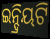
ଇନ୍ଦ୍ରିୟଟି